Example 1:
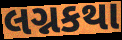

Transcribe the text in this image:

લગ્નકથા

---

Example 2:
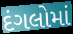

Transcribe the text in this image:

દંગલોમાં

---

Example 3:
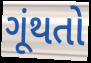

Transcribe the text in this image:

ગૂંથતો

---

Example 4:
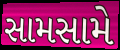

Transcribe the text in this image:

સામસામે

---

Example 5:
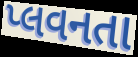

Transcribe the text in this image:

પ્લવનતા